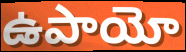
ఉపాయో